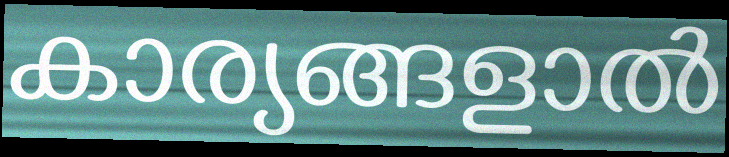
കാര്യങ്ങളാൽ